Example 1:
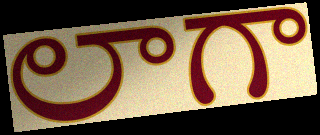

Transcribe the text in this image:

లాగా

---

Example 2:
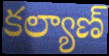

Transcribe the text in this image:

కల్యాణ్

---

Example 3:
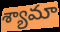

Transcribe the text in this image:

శ్యామా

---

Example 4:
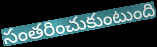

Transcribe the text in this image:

సంతరించుకుంటుంది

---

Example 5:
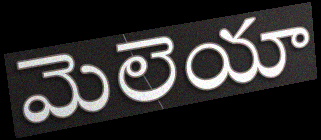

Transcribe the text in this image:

మెలెయా